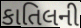
કાતિલની